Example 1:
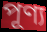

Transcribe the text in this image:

পূণ্য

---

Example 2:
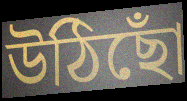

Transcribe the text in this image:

উঠিছোঁ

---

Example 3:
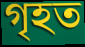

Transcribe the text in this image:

গৃহত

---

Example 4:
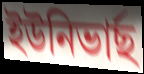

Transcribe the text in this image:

ইউনিভাৰ্ছ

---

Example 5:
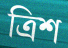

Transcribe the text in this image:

ত্ৰিশ